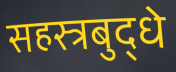
सहस्त्रबुद्धे